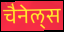
चैनेल्स